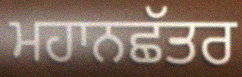
ਮਹਾਨਛੱਤਰ